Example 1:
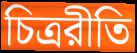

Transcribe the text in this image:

চিত্ররীতি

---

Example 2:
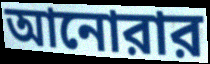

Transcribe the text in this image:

আনোরার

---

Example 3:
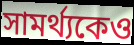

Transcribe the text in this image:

সামর্থ্যকেও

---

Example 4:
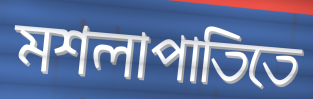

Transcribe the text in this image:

মশলাপাতিতে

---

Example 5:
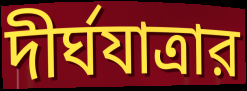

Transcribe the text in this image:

দীর্ঘযাত্রার